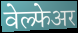
वेल्फेअर